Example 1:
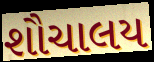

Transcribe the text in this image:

શૌચાલય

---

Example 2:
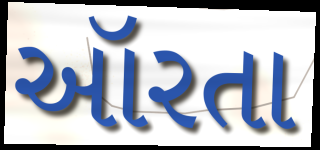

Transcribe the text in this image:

ઑરતા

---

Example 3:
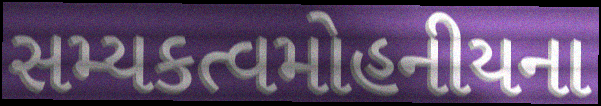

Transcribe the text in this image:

સમ્યકત્વમોહનીયના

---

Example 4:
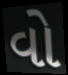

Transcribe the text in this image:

વો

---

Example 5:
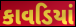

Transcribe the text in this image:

કાવડિયાં